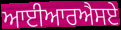
ਆਈਆਰਐਸਏ